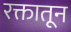
रक्तातून